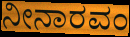
ನೀನಾರವಂ